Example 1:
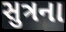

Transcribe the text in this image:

સુત્રના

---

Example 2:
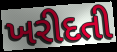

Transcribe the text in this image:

ખરીદતી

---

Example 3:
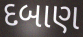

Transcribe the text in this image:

દબાણ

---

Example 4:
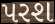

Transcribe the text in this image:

પરશ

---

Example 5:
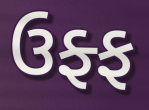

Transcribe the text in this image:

ઉફ્ફ